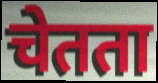
चेतता